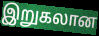
இறுகலான